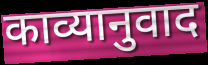
काव्यानुवाद